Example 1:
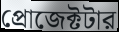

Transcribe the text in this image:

প্রোজেক্টটার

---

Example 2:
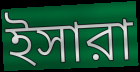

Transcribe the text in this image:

ইসারা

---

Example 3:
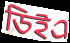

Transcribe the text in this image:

ডিইএ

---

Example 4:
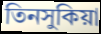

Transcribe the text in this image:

তিনসুকিয়া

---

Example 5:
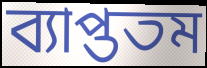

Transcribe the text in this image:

ব্যাপ্ততম